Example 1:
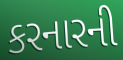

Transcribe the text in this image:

કરનારની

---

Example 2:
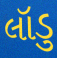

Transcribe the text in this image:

લૉડુ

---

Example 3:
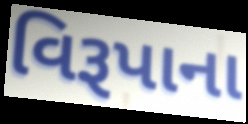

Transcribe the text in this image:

વિરૂપાના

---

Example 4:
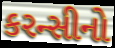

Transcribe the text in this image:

કરન્સીનો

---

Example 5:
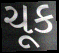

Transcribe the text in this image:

ચૂક